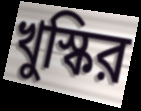
খুস্কির